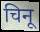
चिनू